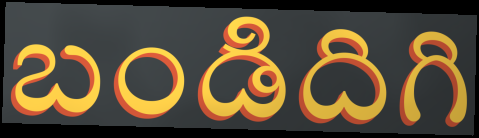
బండిదిగి